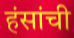
हंसांची